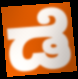
ಡೆ